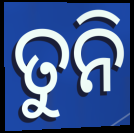
ତୁନି